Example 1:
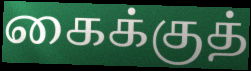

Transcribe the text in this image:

கைக்குத்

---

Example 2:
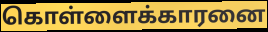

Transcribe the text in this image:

கொள்ளைக்காரனை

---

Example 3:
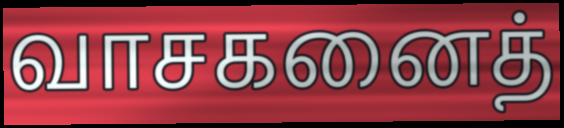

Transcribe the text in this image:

வாசகனைத்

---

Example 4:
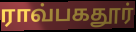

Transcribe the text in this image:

ராவ்பகதூர்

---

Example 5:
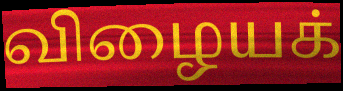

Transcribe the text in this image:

விழையக்